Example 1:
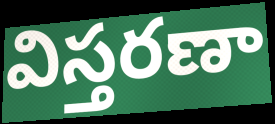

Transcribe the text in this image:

విస్తరణా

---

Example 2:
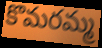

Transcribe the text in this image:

కొమరమ్మ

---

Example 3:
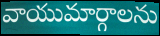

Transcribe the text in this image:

వాయుమార్గాలను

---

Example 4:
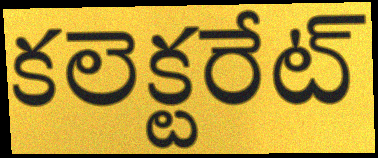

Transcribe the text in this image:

కలెక్టరేట్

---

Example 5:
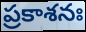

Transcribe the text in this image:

ప్రకాశనః